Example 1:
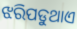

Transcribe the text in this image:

ଝରିପଡୁଥାଏ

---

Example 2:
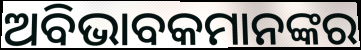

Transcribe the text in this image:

ଅବିଭାବକମାନଙ୍କର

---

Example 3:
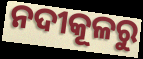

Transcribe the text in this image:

ନଦୀକୂଳରୁ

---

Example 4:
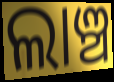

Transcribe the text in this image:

ଲାଞ୍ଚ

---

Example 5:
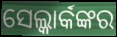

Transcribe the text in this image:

ସେଲ୍କାର୍କଙ୍କର